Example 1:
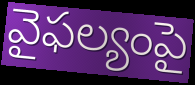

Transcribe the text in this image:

వైఫల్యంపై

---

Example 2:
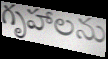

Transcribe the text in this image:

గృహాలను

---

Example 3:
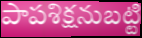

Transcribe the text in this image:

పాపశిక్షనుబట్టి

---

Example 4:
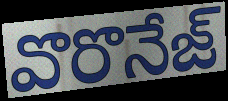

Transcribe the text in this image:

వొరొనేజ్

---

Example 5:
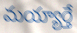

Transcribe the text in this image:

మయ్యార్తే